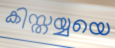
കിസ്തയ്യയെ